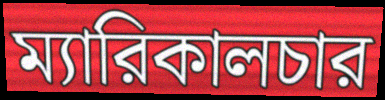
ম্যারিকালচার